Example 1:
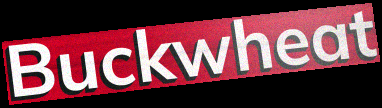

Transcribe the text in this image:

Buckwheat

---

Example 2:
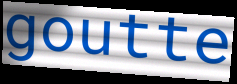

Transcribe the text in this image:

goutte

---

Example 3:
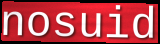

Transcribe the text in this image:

nosuid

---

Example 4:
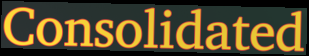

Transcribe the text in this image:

Consolidated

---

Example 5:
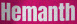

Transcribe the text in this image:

Hemanth